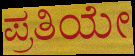
ಪ್ರತಿಯೇ